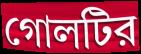
গোলটির